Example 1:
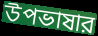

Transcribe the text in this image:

উপভাষার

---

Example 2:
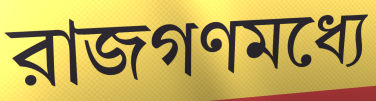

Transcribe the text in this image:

রাজগণমধ্যে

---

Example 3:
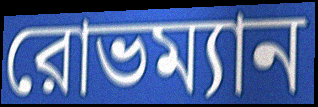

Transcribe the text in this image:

রোভম্যান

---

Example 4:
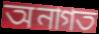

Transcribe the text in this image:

অনাগত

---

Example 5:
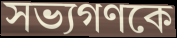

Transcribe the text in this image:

সভ্যগণকে